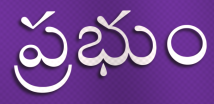
ప్రభుం